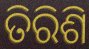
ତିରିଶି